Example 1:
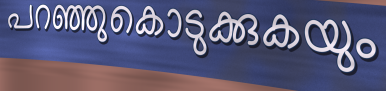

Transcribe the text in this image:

പറഞ്ഞുകൊടുക്കുകയും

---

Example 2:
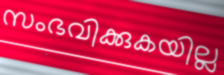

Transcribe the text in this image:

സംഭവിക്കുകയില്ല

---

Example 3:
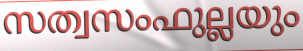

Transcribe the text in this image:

സത്വസംഫുല്ലയും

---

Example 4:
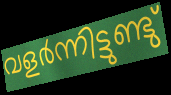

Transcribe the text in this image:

വളർന്നിട്ടുണ്ടു്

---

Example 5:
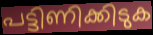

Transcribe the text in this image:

പട്ടിണിക്കിടുക